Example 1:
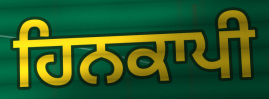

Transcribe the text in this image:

ਹਿਨਕਾਪੀ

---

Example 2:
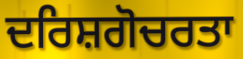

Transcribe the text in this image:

ਦਰਿਸ਼ਗੋਚਰਤਾ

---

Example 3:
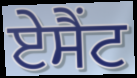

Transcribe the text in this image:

ਏਸੈਂਟ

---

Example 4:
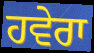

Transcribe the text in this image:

ਹਵੇਰਾ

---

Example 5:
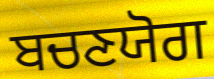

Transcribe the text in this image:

ਬਚਣਯੋਗ